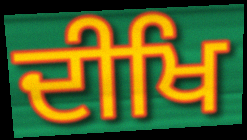
ਦੀਖਿ